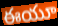
ఈయూ